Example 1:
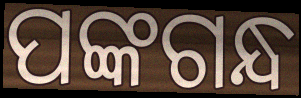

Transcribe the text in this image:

ପଙ୍କଗନ୍ଧ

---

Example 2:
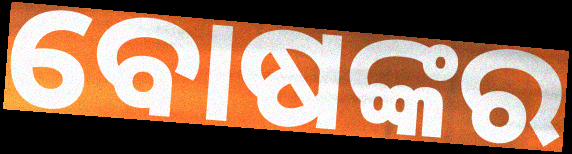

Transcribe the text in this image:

ବୋଷଙ୍କର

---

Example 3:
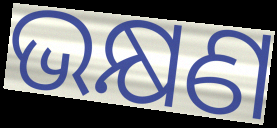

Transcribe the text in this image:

ଭକ୍ଷଣ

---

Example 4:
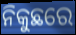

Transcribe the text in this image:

ନିକୁଛରେ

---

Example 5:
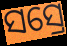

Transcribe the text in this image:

ସସ୍ରେ